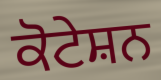
ਕੋਟੇਸ਼ਨ